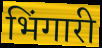
भिंगारी